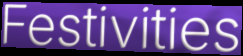
Festivities